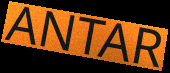
ANTAR